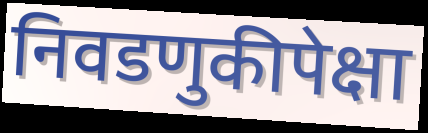
निवडणुकीपेक्षा